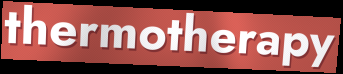
thermotherapy